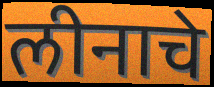
लीनाचे